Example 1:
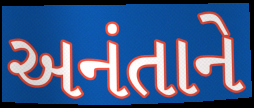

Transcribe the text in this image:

અનંતાને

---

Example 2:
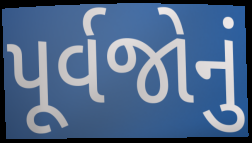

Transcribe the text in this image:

પૂર્વજોનું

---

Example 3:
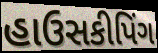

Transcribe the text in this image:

હાઉસકીપિંગ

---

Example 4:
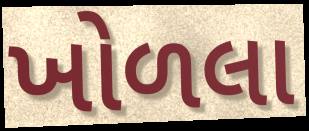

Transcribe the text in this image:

ખોળલા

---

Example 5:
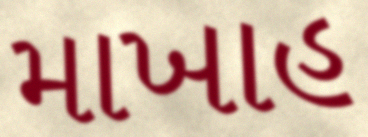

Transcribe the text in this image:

માખાહ